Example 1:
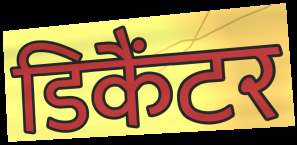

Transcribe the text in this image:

डिकैंटर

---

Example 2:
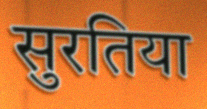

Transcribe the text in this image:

सुरतिया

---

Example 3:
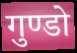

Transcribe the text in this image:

गुण्डो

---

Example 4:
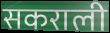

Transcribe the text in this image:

सकराली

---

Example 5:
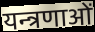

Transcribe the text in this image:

यन्त्रणाओं